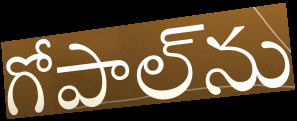
గోపాల్‌ను